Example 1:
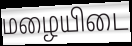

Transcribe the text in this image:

மழையிடை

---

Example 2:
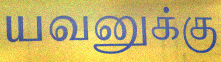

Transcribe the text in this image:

யவனுக்கு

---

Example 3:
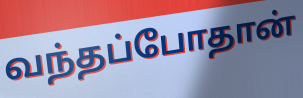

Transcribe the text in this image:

வந்தப்போதான்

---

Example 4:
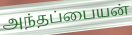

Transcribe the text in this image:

அந்தப்பையன்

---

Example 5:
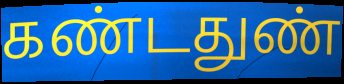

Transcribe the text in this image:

கண்டதுண்